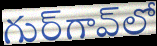
గుర్‌గావ్‌లో